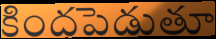
కిందపెడుతూ